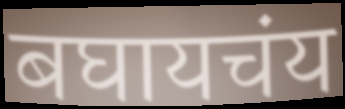
बघायचंय